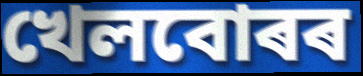
খেলবোৰৰ